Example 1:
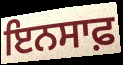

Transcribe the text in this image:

ਇਨਸਾਫ਼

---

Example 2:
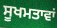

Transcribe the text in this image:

ਸੂਖਮਤਾਵਾਂ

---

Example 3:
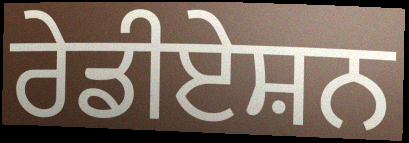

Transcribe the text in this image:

ਰੇਡੀਏਸ਼ਨ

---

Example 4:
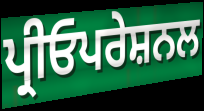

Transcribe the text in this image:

ਪ੍ਰੀਓਪਰੇਸ਼ਨਲ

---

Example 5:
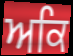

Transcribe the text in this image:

ਅਕਿ